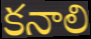
కనాలి